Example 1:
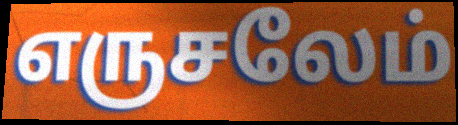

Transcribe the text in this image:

எருசலேம்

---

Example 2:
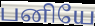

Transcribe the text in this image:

பனியே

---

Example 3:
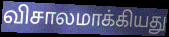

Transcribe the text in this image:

விசாலமாக்கியது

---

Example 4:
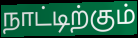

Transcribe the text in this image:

நாட்டிற்கும்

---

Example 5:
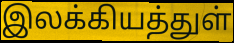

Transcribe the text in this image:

இலக்கியத்துள்